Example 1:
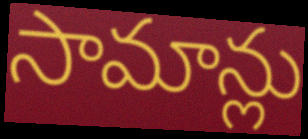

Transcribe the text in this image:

సామాన్లు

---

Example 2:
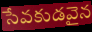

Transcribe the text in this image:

సేవకుడవైన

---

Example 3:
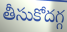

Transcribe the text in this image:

తీసుకోదగ్గ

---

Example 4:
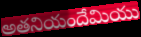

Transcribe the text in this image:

అతనియందేమియు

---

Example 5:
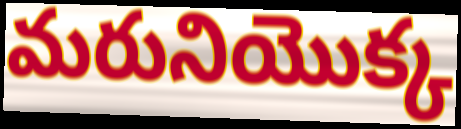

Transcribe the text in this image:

మరునియొక్క